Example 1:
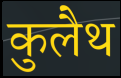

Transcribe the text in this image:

कुलैथ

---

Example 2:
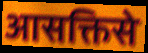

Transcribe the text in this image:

आसक्तिसे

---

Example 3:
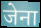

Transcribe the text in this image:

जेना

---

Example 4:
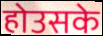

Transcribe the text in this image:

होउसके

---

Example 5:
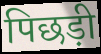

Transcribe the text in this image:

पिछड़ी